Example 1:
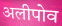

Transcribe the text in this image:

अलीपोव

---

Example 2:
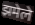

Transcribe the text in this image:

झमेले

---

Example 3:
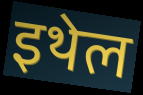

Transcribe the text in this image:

इथेल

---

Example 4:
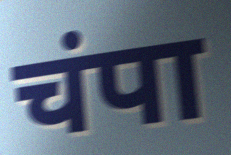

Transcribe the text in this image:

चंपा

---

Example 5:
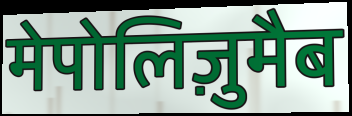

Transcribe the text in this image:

मेपोलिज़ुमैब